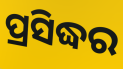
ପ୍ରସିଦ୍ଧର